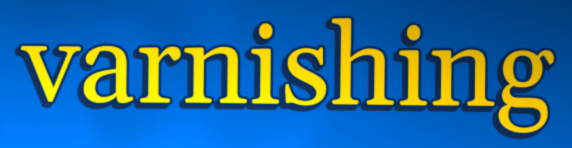
varnishing